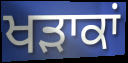
ਖੜਾਕਾਂ